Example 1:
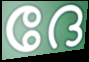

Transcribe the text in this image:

ദേ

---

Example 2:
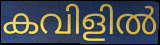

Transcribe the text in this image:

കവിളിൽ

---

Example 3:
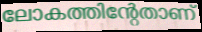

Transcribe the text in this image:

ലോകത്തിന്റേതാണ്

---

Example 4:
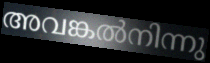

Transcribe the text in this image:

അവങ്കൽനിന്നു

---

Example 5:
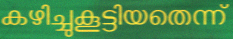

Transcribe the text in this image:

കഴിച്ചുകൂട്ടിയതെന്ന്